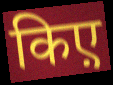
किए़